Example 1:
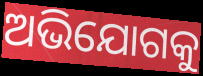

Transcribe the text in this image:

ଅଭିଯୋଗକୁ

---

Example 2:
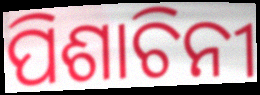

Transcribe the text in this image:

ପିଶାଚିନୀ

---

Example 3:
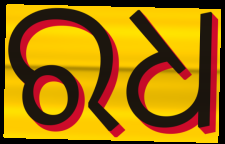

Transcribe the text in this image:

ରଧ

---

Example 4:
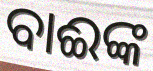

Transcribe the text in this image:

ବାଈଙ୍କ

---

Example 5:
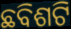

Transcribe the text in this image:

ଛବିଶଟି